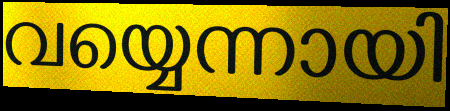
വയ്യെന്നായി